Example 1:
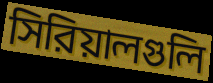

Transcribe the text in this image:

সিরিয়ালগুলি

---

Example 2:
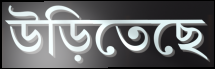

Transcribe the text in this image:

উড়িতেছে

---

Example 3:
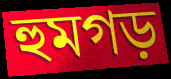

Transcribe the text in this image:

হুমগড়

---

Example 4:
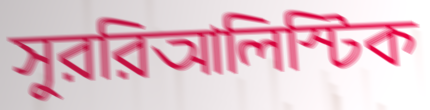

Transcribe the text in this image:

সুররিআলিস্টিক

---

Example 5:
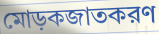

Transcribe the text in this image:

মোড়কজাতকরণ